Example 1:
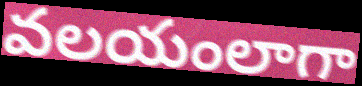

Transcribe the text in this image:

వలయంలాగా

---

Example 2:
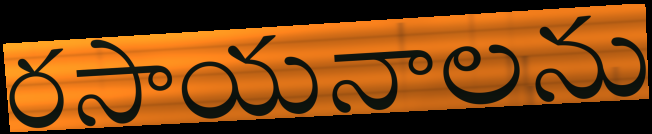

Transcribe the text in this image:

రసాయనాలను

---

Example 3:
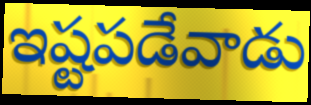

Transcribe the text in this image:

ఇష్టపడేవాడు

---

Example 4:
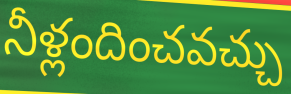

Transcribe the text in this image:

నీళ్లందించవచ్చు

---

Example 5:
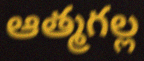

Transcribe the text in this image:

ఆత్మగల్ల